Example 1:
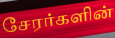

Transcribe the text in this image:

சேரர்களின்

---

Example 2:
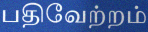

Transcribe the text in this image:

பதிவேற்றம்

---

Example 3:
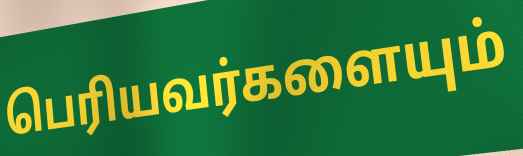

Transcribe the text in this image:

பெரியவர்களையும்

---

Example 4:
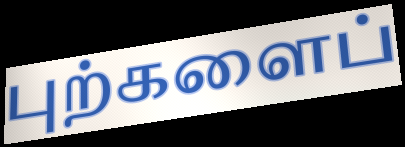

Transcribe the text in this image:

புற்களைப்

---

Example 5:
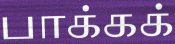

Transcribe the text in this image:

பாக்கக்